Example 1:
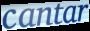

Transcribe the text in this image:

cantar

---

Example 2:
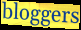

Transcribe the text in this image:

bloggers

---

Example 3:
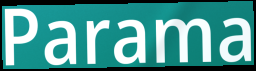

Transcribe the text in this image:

Parama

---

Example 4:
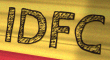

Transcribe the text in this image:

IDFC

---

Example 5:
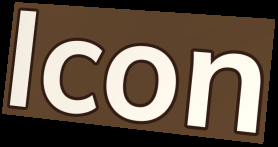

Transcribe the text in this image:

Icon